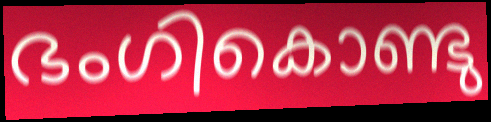
ഭംഗികൊണ്ടു